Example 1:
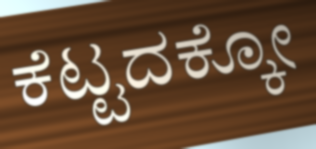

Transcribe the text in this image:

ಕೆಟ್ಟದಕ್ಕೋ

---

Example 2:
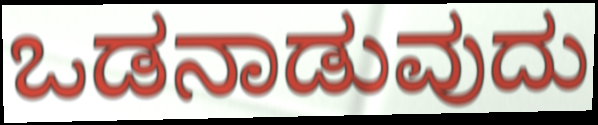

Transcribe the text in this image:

ಒಡನಾಡುವುದು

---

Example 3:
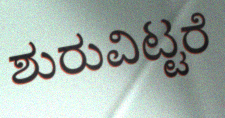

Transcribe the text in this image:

ಶುರುವಿಟ್ಟರೆ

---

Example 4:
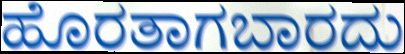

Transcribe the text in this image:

ಹೊರತಾಗಬಾರದು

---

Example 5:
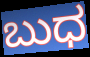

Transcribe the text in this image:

ಬುಧ